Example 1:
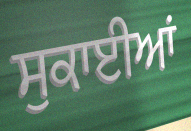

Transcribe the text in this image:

ਸੁਕਾਈਆਂ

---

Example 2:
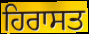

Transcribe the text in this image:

ਹਿਰਾਸਤ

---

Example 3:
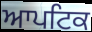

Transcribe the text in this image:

ਆਪਟਿਕ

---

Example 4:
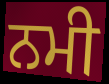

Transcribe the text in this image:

ਨਮੀ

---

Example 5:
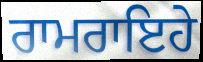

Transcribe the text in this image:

ਰਾਮਰਾਇਹੇ